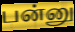
பன்னு